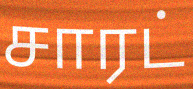
சாரட்